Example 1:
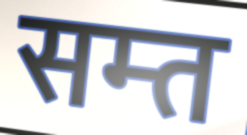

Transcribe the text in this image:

सम्त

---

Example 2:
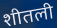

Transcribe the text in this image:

शीतली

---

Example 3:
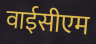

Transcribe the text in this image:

वाईसीएम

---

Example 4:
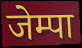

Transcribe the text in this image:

जेम्पा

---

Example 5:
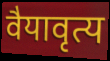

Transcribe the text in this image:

वैयावृत्य